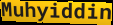
Muhyiddin